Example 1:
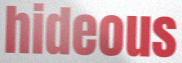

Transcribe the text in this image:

hideous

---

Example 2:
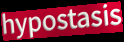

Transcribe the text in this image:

hypostasis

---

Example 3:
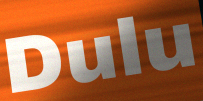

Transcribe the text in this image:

Dulu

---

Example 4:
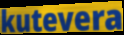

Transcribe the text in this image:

kutevera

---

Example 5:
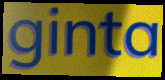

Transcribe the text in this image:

ginta